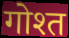
गोश्त